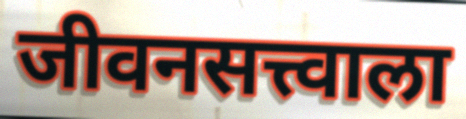
जीवनसत्त्वाला